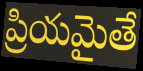
ప్రియమైతే